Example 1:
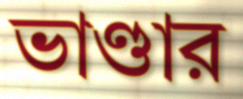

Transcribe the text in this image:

ভাণ্ডার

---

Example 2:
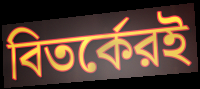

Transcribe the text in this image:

বিতর্কেরই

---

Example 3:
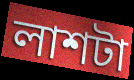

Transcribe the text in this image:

লাশটা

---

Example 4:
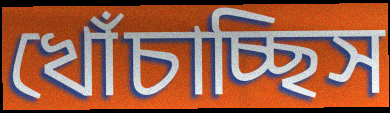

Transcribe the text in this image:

খোঁচাচ্ছিস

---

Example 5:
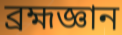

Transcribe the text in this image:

ব্রহ্মজ্ঞান